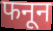
फनून